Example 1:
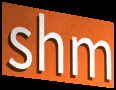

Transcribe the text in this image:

shm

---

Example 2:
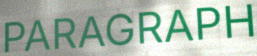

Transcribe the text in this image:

PARAGRAPH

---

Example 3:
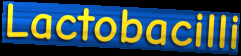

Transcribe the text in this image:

Lactobacilli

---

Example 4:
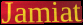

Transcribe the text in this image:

Jamiat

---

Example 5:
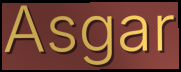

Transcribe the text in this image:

Asgar